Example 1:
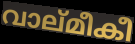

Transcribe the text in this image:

വാല്മീകീ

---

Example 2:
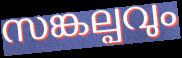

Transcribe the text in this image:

സങ്കല്പവും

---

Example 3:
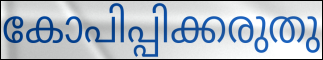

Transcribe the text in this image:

കോപിപ്പിക്കരുതു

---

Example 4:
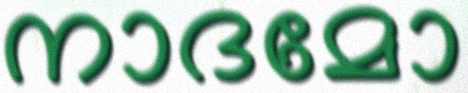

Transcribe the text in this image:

നാദമോ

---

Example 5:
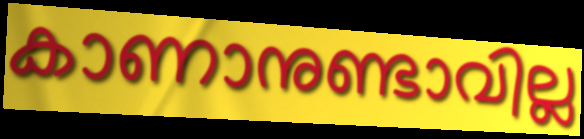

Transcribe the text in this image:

കാണാനുണ്ടാവില്ല